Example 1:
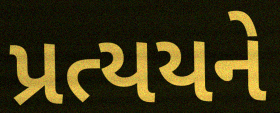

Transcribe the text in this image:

પ્રત્યયને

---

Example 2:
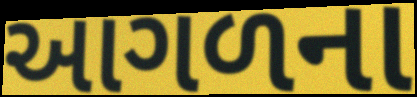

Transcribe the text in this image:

આગળના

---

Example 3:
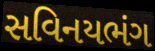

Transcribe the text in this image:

સવિનયભંગ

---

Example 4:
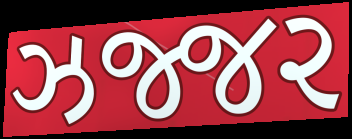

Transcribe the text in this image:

ઝજ્જર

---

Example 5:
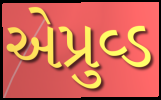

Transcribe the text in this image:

એપ્રુવ્ડ